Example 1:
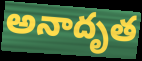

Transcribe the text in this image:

అనాదృత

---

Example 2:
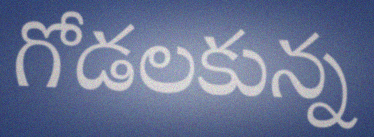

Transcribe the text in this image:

గోడలకున్న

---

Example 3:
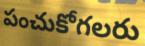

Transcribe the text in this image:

పంచుకోగలరు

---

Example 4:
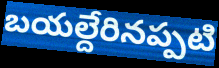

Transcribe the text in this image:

బయల్దేరినప్పటి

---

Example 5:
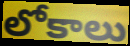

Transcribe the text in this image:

లోకాలు